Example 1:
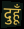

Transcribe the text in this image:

दुहूँ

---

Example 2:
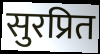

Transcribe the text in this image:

सुरप्रित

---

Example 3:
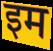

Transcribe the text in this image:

इम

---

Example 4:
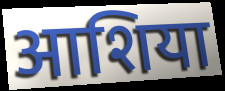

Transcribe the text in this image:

आशिया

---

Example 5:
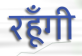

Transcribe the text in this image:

रहूँगी